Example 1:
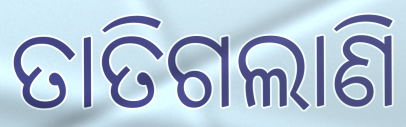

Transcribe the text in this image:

ତାତିଗଲାଣି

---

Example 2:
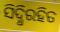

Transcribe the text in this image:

ସିଦ୍ଧିରହିତ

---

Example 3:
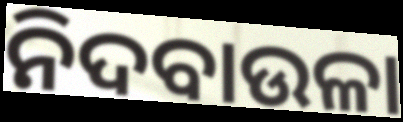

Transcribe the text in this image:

ନିଦବାଉଳା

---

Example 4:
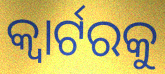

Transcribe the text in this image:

କ୍ୱାର୍ଟରକୁ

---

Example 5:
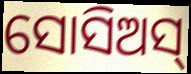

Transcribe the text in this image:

ସୋସିଅସ୍